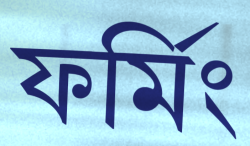
ফর্মিং